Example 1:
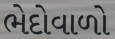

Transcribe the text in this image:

ભેદોવાળો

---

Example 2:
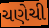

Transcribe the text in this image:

ચણેચી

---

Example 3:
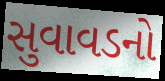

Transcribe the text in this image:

સુવાવડનો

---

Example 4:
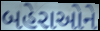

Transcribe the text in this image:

બહેરાઓને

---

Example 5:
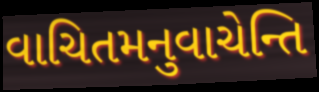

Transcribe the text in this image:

વાચિતમનુવાચેન્તિ